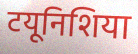
टयूनिशिया